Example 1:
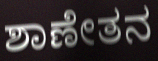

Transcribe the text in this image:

ಶಾಣೇತನ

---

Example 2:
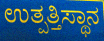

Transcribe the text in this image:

ಉತ್ಪತ್ತಿಸ್ಥಾನ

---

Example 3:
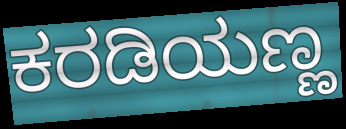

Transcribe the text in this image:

ಕರಡಿಯಣ್ಣ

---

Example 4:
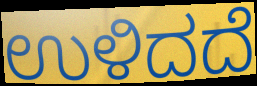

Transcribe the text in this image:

ಉಳಿದದೆ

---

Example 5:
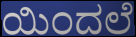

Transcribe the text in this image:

ಯಿಂದಲೆ